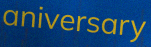
aniversary